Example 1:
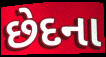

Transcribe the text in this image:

છેદના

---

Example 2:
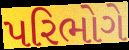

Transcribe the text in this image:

પરિભોગે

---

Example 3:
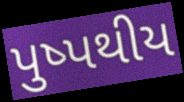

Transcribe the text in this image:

પુષ્પથીય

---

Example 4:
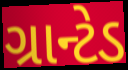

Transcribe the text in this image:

ગ્રાન્ટેડ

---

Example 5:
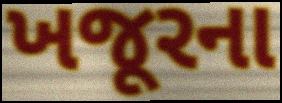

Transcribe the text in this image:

ખજૂરના